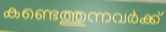
കണ്ടെത്തുന്നവർക്ക്